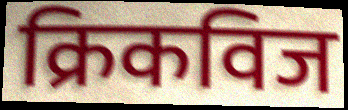
क्रिकविज